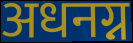
अधनग्न